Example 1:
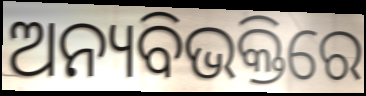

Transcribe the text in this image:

ଅନ୍ୟବିଭକ୍ତିରେ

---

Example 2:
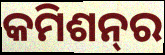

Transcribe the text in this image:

କମିଶନ୍‌ର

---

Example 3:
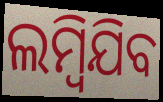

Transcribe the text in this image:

ଲମ୍ୱିଯିବ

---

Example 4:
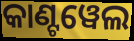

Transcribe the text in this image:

କାଣ୍ଟୱେଲ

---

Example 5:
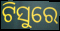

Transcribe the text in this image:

ଟିସୁରେ